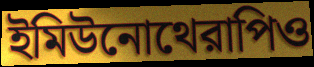
ইমিউনোথেরাপিও